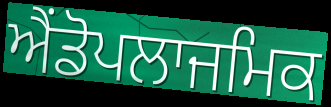
ਐਂਡੋਪਲਾਜਮਿਕ